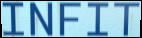
INFIT